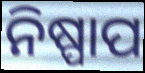
ନିଷ୍ପାପ